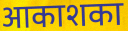
आकाशका